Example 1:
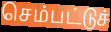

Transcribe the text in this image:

செம்பட்டுச்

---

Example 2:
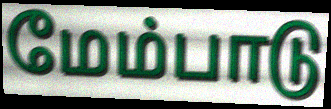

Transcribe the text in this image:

மேம்பாடு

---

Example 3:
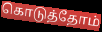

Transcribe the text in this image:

கொடுத்தோம்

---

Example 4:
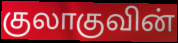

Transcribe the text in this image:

குலாகுவின்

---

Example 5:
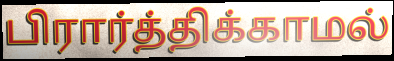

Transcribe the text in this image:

பிரார்த்திக்காமல்